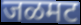
जळमट